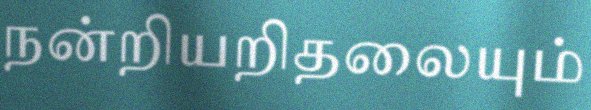
நன்றியறிதலையும்